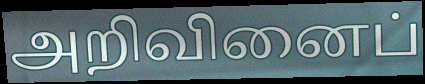
அறிவினைப்